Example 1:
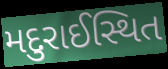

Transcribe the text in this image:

મદુરાઈસ્થિત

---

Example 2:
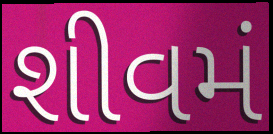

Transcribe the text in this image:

શીવમં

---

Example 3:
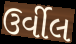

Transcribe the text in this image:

ઉર્વીલ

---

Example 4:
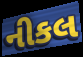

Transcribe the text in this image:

નીકલ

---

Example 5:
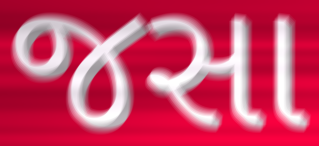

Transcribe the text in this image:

જસા